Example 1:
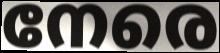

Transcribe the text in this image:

നേരെ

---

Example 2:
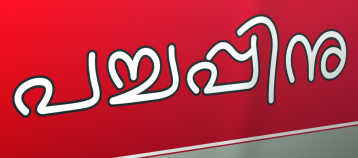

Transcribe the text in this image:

പച്ചപ്പിനു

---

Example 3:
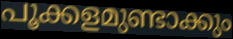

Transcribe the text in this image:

പൂക്കളമുണ്ടാക്കും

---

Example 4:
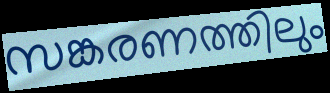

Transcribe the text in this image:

സങ്കരണത്തിലും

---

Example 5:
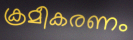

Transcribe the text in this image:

ക്രമീകരണം